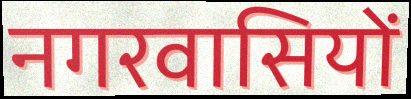
नगरवासियों